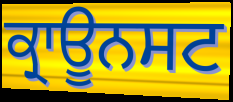
ਕ੍ਰਾਊਨਸਟ